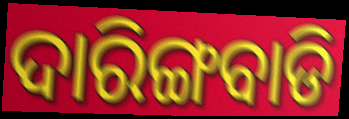
ଦାରିଙ୍ଗବାଡି